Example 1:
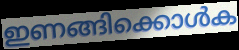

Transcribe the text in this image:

ഇണങ്ങിക്കൊൾക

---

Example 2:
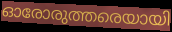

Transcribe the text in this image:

ഓരോരുത്തരെയായി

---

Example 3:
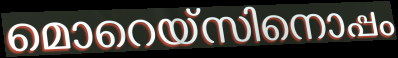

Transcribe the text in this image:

മൊറെയ്സിനൊപ്പം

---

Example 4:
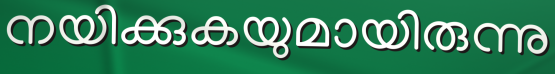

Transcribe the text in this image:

നയിക്കുകയുമായിരുന്നു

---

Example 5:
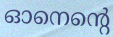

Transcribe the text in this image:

ഓനെന്റെ